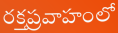
రక్తప్రవాహంలో